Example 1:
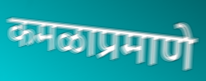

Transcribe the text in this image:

कमळाप्रमाणे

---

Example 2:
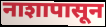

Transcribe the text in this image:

नाशापासून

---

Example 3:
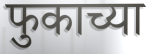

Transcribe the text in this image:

फुकाच्या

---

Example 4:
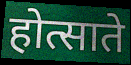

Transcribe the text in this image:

होत्साते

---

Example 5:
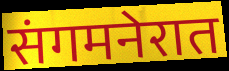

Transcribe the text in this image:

संगमनेरात